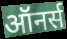
ऑनर्स